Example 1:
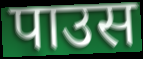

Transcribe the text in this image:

पाउस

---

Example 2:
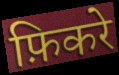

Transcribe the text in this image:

फ़िकरे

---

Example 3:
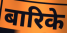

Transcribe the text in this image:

बारिके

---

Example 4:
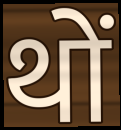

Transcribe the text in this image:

थों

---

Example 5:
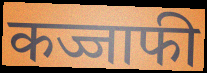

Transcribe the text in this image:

कज्जाफी